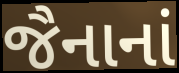
જૈનાનાં